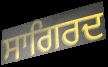
ਸਾਗਿਰਦ